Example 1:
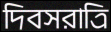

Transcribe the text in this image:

দিবসরাত্রি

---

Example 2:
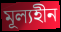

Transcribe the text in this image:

মূল্যহীন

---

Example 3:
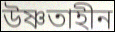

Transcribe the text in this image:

উষ্ণতাহীন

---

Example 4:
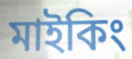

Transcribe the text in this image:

মাইকিং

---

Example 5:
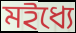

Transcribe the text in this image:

মইধ্যে